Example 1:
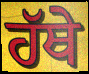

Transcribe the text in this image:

ਹੱਥੇ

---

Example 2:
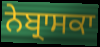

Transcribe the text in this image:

ਨੇਬ੍ਰਾਸਕਾ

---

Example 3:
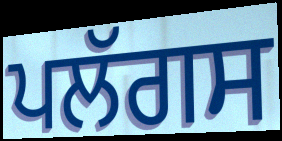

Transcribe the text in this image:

ਪਲੱਗਸ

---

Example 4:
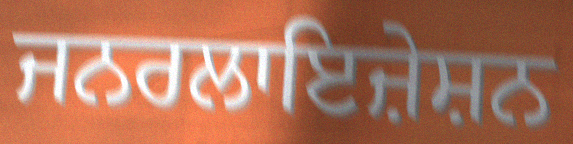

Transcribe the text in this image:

ਜਨਰਲਾਇਜ਼ੇਸ਼ਨ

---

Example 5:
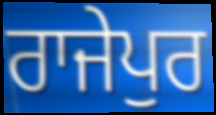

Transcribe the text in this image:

ਰਾਜੇਪੁਰ